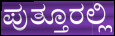
ಪುತ್ತೂರಲ್ಲಿ